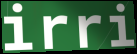
irri